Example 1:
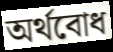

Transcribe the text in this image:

অৰ্থবোধ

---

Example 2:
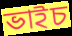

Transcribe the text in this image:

ভাইচ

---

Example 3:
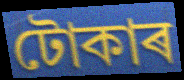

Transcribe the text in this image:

টোকাৰ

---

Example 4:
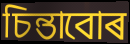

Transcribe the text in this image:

চিন্তাবোৰ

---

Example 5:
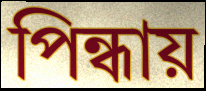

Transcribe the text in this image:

পিন্ধায়